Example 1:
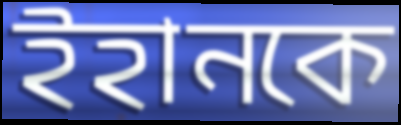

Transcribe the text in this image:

ইহানকে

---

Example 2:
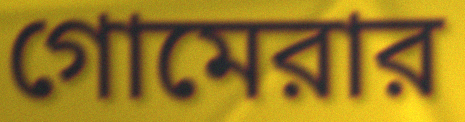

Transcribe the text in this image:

গোমেরার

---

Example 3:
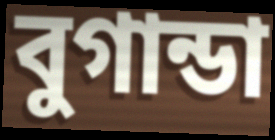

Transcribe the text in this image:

বুগান্ডা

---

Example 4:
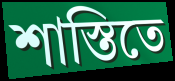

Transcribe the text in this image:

শাস্তিতে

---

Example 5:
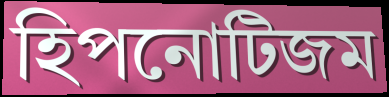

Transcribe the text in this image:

হিপনোটিজম